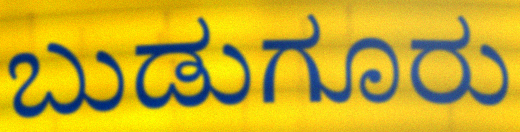
ಬುಡುಗೂರು